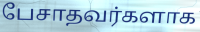
பேசாதவர்களாக